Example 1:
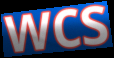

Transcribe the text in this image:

wcs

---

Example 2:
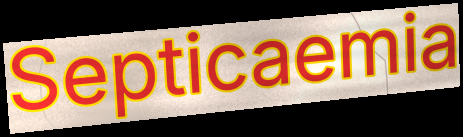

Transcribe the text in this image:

Septicaemia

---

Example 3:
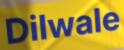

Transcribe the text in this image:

Dilwale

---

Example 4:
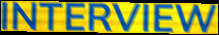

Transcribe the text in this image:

INTERVIEW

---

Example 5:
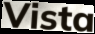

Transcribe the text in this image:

Vista